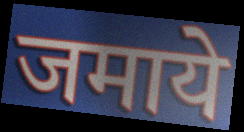
जमाये